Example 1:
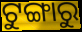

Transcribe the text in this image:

ଟୁଙ୍ଗାରୁ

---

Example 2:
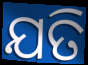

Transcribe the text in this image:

ଯତି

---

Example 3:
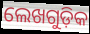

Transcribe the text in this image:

ଲେଖଗୁଡ଼ିକ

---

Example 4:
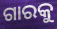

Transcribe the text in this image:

ଗାରକୁ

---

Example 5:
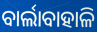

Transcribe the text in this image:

ବାର୍ଲାବାହାଳି